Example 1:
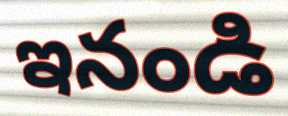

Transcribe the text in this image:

ఇనండి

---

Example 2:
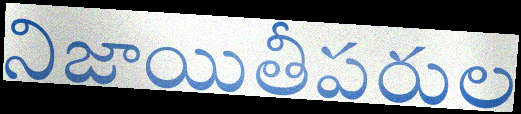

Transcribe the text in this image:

నిజాయితీపరుల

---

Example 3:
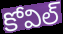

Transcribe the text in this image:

కోవిల్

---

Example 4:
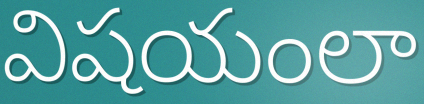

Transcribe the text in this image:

విషయంలా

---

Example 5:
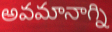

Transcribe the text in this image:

అవమానాగ్ని